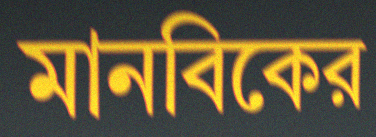
মানবিকের